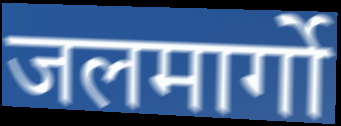
जलमार्गो